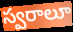
స్వరాలూ